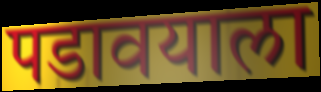
पडावयाला